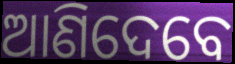
ଆଣିଦେବେ